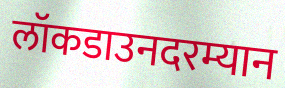
लॉकडाउनदरम्यान